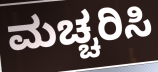
ಮಚ್ಚರಿಸಿ